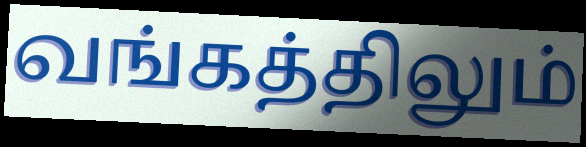
வங்கத்திலும்